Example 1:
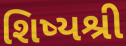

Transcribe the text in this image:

શિષ્યશ્રી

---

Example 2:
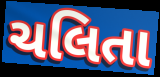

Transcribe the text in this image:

ચલિતા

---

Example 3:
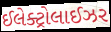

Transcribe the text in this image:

ઈલેક્ટ્રોલાઈઝર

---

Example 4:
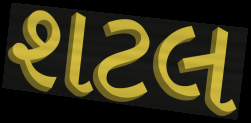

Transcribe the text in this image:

શટલ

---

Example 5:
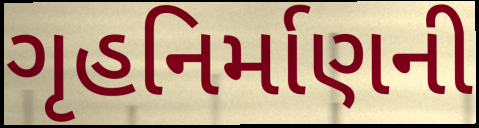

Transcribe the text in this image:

ગૃહનિર્માણની